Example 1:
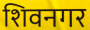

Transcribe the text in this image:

शिवनगर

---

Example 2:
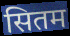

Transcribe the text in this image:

सितम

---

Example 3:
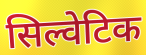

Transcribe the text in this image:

सिल्वेटिक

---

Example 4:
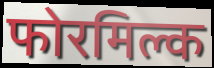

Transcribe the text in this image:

फोरमिल्क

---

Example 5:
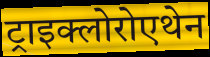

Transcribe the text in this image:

ट्राइक्लोरोएथेन